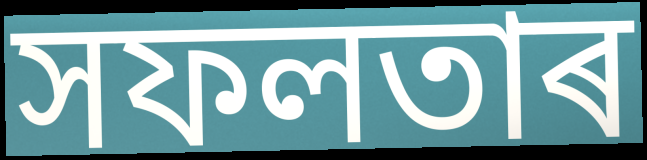
সফলতাৰ